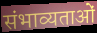
संभाव्यताओं